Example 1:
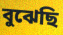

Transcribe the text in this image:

বুঝেছি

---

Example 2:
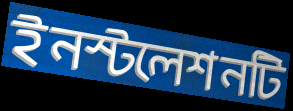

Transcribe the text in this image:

ইনস্টলেশনটি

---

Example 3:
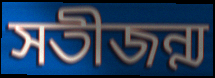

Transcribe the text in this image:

সতীজন্ম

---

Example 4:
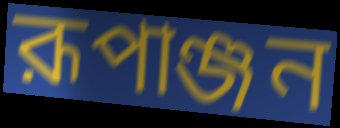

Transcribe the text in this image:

রূপাঞ্জন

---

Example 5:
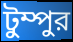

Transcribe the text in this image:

টুম্পুর